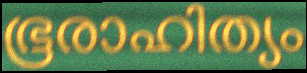
ഭൂരാഹിത്യം